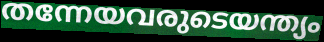
തന്നേയവരുടെയന്ത്യം